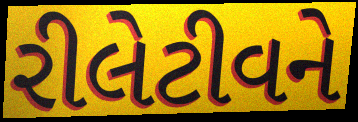
રીલેટીવને